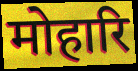
मोहारि